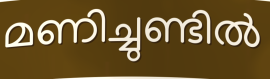
മണിച്ചുണ്ടിൽ